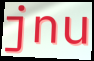
jnu